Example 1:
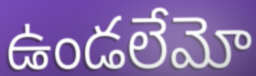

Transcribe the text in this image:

ఉండలేమో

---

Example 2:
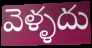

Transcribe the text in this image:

వెళ్ళదు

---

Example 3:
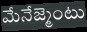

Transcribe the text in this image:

మేనేజ్మెంటు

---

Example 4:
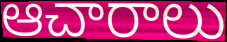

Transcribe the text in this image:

ఆచారాలు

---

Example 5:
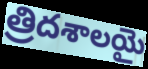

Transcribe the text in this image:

త్రిదశాలయై